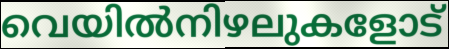
വെയിൽനിഴലുകളോട്